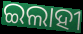
ଇଲାହୀ